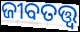
ଜୀବତତ୍ତ୍ୱ